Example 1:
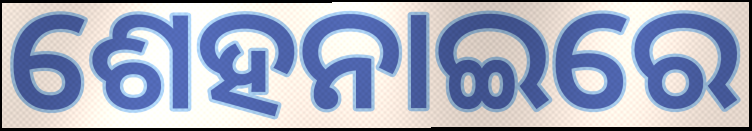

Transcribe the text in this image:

ଶେହନାଇରେ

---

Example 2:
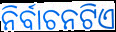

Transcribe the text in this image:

ନିର୍ବାଚନଟିଏ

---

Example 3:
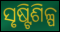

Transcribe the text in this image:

ସୃଷ୍ଟିଶିଳ୍ପ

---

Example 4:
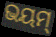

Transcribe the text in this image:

ଭୟମ୍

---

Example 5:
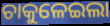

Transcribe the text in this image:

ଚାକୁଳେଇଲା